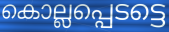
കൊല്ലപ്പെടട്ടെ